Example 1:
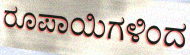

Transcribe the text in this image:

ರೂಪಾಯಿಗಳಿಂದ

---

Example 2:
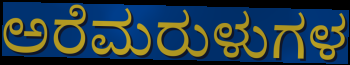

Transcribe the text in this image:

ಅರೆಮರುಳುಗಳ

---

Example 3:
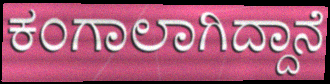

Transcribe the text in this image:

ಕಂಗಾಲಾಗಿದ್ದಾನೆ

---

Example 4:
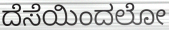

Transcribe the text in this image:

ದೆಸೆಯಿಂದಲೋ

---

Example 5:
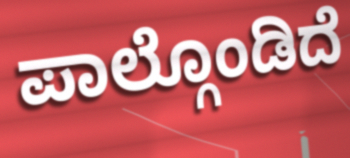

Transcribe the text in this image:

ಪಾಲ್ಗೊಂಡಿದೆ